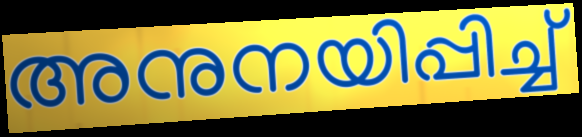
അനുനയിപ്പിച്ച്